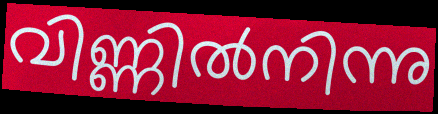
വിണ്ണിൽനിന്നു